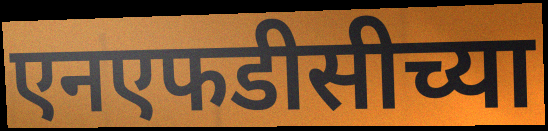
एनएफडीसीच्या